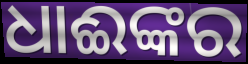
ଧାଈଙ୍କର